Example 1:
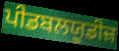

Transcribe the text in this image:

ਪੀਡਬਲਯੂਡੀਜ਼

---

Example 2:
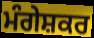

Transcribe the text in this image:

ਮੰਗੇਸ਼ਕਰ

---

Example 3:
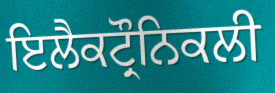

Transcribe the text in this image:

ਇਲੈਕਟ੍ਰੌਨਿਕਲੀ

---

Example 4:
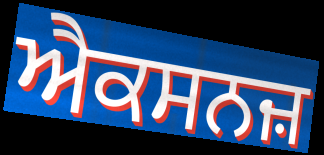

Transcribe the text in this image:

ਐਕਸਨਜ਼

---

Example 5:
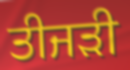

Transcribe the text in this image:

ਤੀਜੜੀ